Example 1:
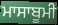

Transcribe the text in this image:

ਮਾਸਾਬੂਮੀ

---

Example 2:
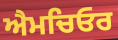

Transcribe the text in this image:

ਐਮਚਿਓਰ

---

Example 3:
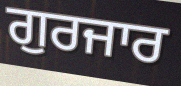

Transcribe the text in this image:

ਗੁਰਜਾਰ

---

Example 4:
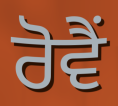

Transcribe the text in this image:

ਰੋਵੈਂ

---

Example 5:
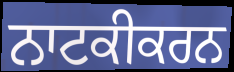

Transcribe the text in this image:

ਨਾਟਕੀਕਰਨ